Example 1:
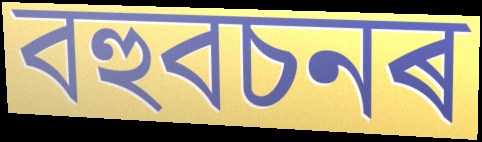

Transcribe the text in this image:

বহুবচনৰ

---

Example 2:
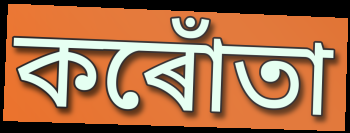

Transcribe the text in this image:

কৰোঁতা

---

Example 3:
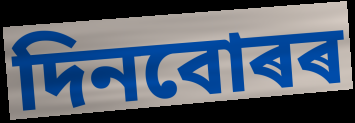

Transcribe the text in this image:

দিনবোৰৰ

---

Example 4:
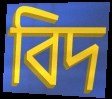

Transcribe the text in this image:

বিদ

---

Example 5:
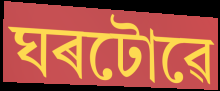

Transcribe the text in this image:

ঘৰটোৱে